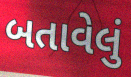
બતાવેલું